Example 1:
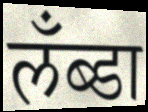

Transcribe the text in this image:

लँब्डा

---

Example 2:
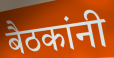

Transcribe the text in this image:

बैठकांनी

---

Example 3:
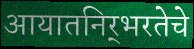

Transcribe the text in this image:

आयातनिर्भरतेचे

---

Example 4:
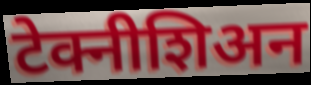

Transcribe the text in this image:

टेक्नीशिअन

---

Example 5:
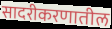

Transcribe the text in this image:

सादरीकरणातील